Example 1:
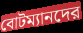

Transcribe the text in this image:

বোটম্যানদের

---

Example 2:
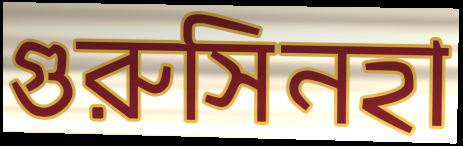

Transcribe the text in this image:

গুরুসিনহা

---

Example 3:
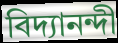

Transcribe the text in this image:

বিদ্যানন্দী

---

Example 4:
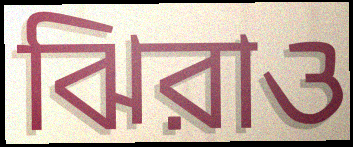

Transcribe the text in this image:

ঝিরাও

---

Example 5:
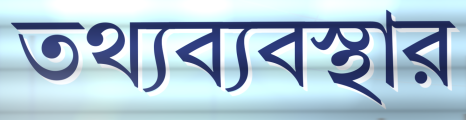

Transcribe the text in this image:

তথ্যব্যবস্থার